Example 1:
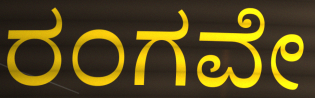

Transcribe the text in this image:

ರಂಗವೇ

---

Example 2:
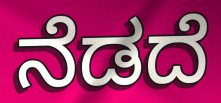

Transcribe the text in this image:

ನೆಡದೆ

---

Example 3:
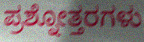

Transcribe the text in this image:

ಪ್ರಶ್ನೋತ್ತರಗಳು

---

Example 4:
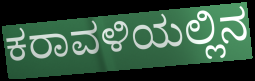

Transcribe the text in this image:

ಕರಾವಳಿಯಲ್ಲಿನ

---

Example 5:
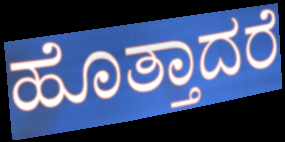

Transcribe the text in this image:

ಹೊತ್ತಾದರೆ